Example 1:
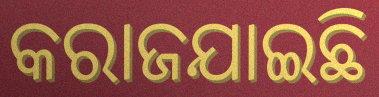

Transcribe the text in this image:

କରାଜଯାଇଛି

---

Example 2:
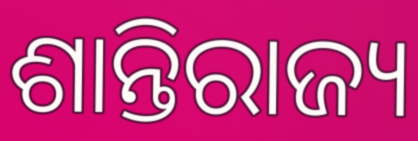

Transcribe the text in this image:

ଶାନ୍ତିରାଜ୍ୟ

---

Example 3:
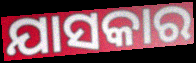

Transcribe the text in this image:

ଯାସକାର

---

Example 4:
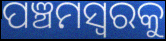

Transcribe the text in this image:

ପଞ୍ଚମସ୍ୱରକୁ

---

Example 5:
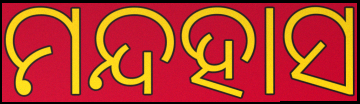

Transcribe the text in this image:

ମନ୍ଦହାସ